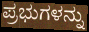
ಪ್ರಭುಗಳನ್ನು